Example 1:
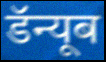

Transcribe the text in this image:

डॅन्यूब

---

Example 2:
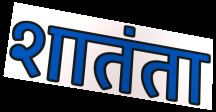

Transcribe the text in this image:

शातंता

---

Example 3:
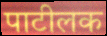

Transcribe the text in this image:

पाटीलक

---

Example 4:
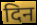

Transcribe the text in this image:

दिन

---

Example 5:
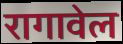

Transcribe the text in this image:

रागावेल